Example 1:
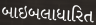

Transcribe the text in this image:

બાઇબલાધારિત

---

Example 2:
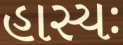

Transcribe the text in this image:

હાસ્યઃ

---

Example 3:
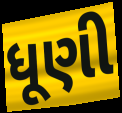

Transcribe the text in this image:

ધૂણી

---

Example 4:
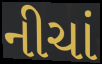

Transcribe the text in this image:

નીચાં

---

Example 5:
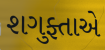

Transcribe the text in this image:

શગુફ્તાએ